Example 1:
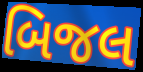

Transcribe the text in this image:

બિજલ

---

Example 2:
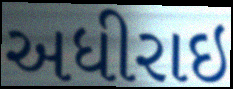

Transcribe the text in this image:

અધીરાઇ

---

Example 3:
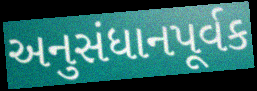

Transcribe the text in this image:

અનુસંધાનપૂર્વક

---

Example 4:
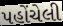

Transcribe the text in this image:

પહોંચેલી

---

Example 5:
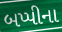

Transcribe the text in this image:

બપ્પીના